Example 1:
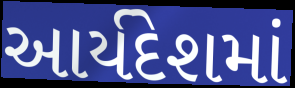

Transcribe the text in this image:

આર્યદેશમાં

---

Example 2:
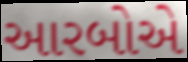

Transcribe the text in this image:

આરબોએ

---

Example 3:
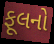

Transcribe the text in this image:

ફૂલનો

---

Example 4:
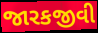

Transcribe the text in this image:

જારકજીવી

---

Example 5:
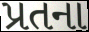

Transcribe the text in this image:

પ્રતના